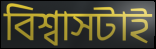
বিশ্বাসটাই